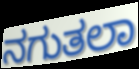
ನಗುತಲಾ